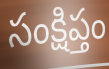
సంక్షిప్తం